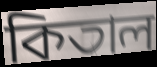
কিতাল